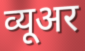
व्यूअर